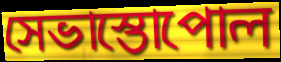
সেভাস্তোপোল